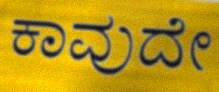
ಕಾವುದೇ